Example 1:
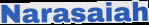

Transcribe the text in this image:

Narasaiah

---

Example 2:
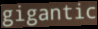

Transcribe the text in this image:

gigantic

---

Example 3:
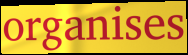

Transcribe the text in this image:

organises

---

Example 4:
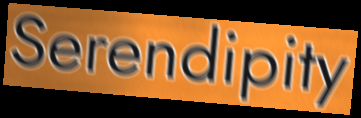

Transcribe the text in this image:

Serendipity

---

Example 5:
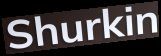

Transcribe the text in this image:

Shurkin